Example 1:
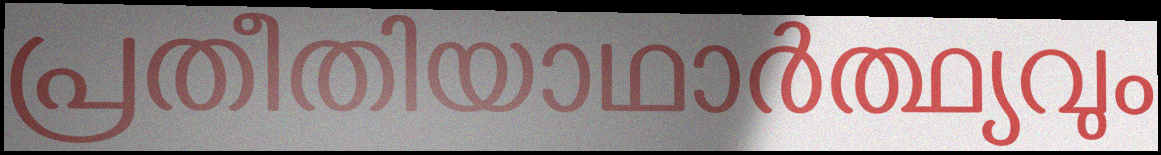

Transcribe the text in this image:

പ്രതീതിയാഥാർത്ഥ്യവും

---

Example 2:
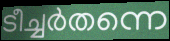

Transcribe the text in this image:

ടീച്ചർതന്നെ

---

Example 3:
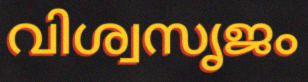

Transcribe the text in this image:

വിശ്വസൃജം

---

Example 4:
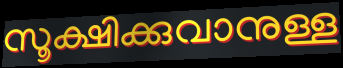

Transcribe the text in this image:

സൂക്ഷിക്കുവാനുള്ള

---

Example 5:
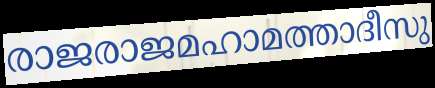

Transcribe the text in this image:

രാജരാജമഹാമത്താദീസു